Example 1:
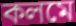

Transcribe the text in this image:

কলমে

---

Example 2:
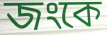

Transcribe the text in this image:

জংকে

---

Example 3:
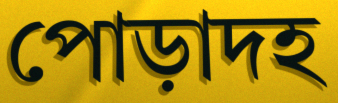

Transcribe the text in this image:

পোড়াদহ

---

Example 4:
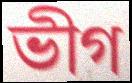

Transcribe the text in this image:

ভীগ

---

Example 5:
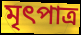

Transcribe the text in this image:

মৃৎপাত্র